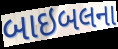
બાઇબલના